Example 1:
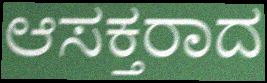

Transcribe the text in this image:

ಆಸಕ್ತರಾದ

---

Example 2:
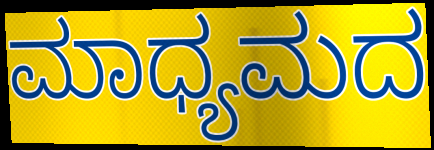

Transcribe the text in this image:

ಮಾಧ್ಯಮದ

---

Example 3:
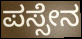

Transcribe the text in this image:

ಪಸ್ಸೇನ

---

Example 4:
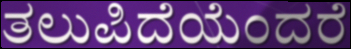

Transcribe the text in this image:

ತಲುಪಿದೆಯೆಂದರೆ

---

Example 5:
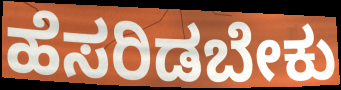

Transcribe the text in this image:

ಹೆಸರಿಡಬೇಕು